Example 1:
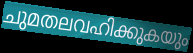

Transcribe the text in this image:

ചുമതലവഹിക്കുകയും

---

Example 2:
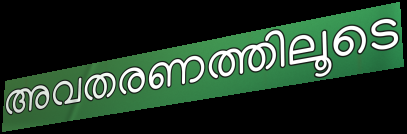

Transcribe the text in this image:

അവതരണത്തിലൂടെ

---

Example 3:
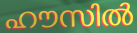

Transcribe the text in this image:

ഹൗസിൽ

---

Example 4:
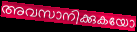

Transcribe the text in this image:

അവസാനിക്കുകയോ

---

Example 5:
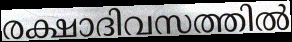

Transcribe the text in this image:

രക്ഷാദിവസത്തിൽ